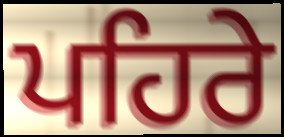
ਪਹਿਰੇ